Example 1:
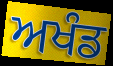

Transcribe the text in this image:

ਅਖੰਡ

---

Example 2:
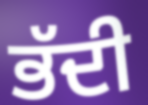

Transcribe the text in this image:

ਭੱਦੀ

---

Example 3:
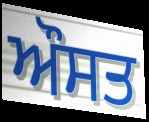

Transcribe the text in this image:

ਔਸਤ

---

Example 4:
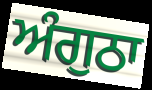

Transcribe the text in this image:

ਅੰਗੁਠਾ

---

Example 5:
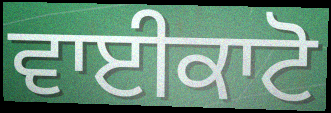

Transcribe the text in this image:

ਵਾਈਕਾਟੋ